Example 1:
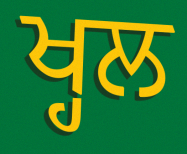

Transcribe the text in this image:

ਖ੍ਹਲ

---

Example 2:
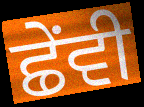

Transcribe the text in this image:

ਛੇੰਵੀ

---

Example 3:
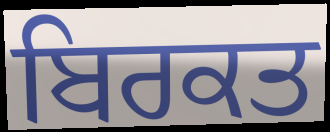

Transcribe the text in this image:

ਬਿਰਕਤ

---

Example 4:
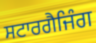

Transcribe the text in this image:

ਸਟਾਰਗੈਜਿੰਗ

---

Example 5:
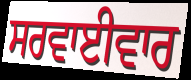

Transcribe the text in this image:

ਸਰਵਾਈਵਾਰ